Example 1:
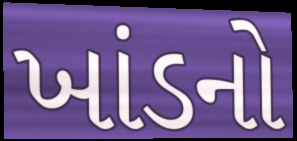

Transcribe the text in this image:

ખાંડનો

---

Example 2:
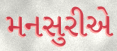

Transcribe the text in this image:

મનસુરીએ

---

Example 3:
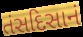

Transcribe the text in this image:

તંસદિસાનં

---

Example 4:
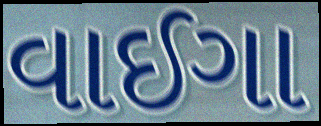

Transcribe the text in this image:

વાઈગા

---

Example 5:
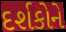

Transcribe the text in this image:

દર્શકોને